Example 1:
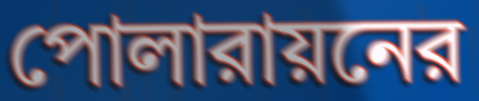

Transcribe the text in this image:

পোলারায়নের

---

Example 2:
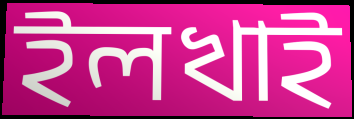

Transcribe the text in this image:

ইলখাই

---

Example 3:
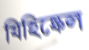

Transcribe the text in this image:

যিহিষ্কেল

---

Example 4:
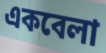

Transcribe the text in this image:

একবেলা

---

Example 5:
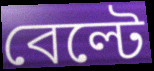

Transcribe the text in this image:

বেল্টে